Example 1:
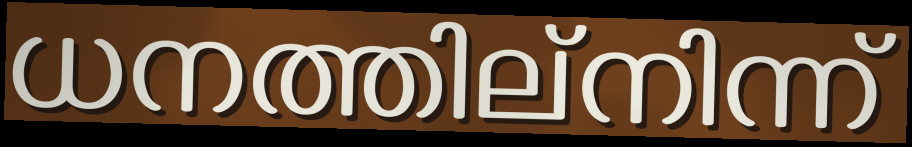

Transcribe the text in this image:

ധനത്തില്നിന്ന്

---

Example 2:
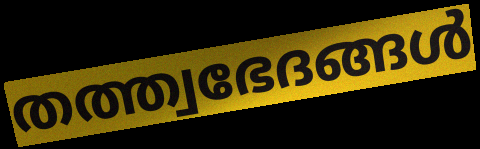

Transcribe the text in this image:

തത്ത്വഭേദങ്ങൾ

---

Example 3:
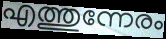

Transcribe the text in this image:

എത്തുന്നേരം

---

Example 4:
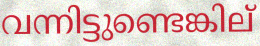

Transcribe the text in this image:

വന്നിട്ടുണ്ടെങ്കില്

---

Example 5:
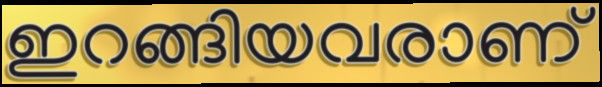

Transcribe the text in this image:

ഇറങ്ങിയവരാണ്